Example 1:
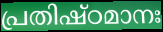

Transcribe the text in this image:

പ്രതിഷ്ഠമാനഃ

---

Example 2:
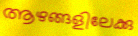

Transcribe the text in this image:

ആഴങ്ങളിലേക്കു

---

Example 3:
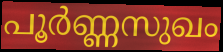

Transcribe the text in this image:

പൂർണ്ണസുഖം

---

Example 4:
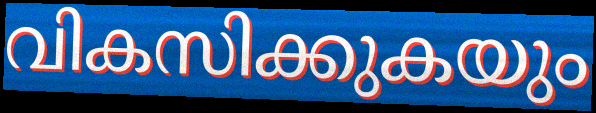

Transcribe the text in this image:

വികസിക്കുകയും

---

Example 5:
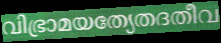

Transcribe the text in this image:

വിഭ്രാമയത്യേതദതീവ